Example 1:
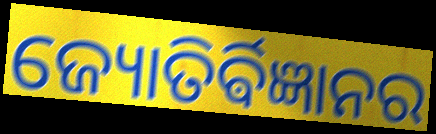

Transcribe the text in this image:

ଜ୍ୟୋତିର୍ଵିଜ୍ଞାନର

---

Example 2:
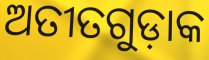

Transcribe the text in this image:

ଅତୀତଗୁଡ଼ାକ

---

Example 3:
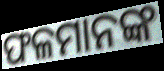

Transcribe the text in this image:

ଫଳମାନଙ୍କ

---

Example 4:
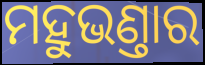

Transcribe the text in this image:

ମହୁଭଣ୍ତାର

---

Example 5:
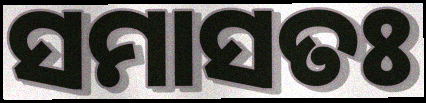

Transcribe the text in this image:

ସମାସତଃ